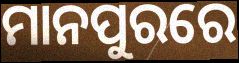
ମାନପୁରରେ